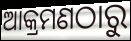
ଆକ୍ରମଣଠାରୁ